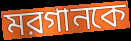
মরগানকে